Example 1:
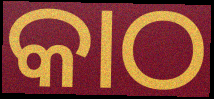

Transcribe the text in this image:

କାଠ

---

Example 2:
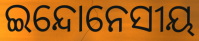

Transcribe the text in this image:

ଇନ୍ଦୋନେସୀୟ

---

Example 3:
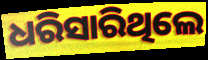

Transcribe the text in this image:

ଧରିସାରିଥିଲେ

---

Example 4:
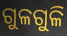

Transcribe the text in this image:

ଗୁଳଗୁଳି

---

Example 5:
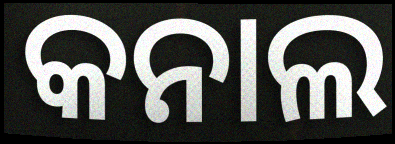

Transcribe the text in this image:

କନାଲ